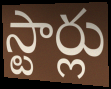
స్టార్లు